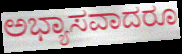
ಅಭ್ಯಾಸವಾದರೂ